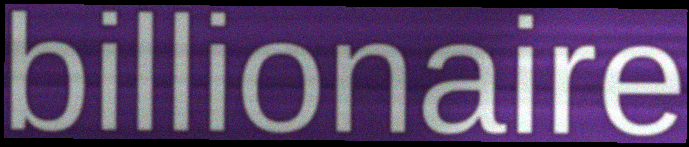
billionaire